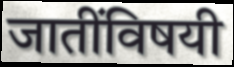
जातींविषयी